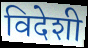
विदेशी